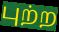
புற்ற